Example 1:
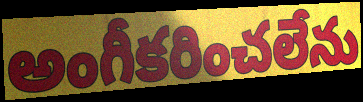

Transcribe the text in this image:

అంగీకరించలేను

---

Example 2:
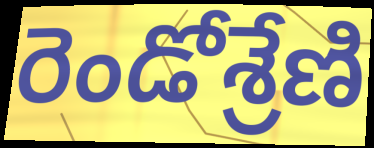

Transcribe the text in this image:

రెండోశ్రేణి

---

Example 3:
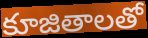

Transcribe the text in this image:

కూజితాలతో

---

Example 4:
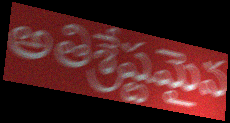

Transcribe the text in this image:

అతిశ్రేష్టమైన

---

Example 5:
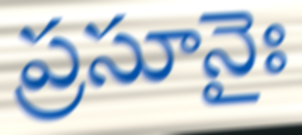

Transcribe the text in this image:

ప్రసూనైః